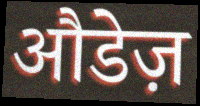
औडेज़